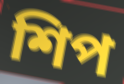
শিপ